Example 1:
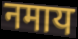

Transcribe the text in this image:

नमाय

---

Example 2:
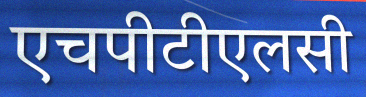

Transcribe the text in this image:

एचपीटीएलसी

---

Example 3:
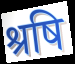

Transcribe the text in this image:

श्रषि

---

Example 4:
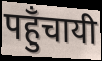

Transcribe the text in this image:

पहुँचायी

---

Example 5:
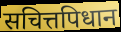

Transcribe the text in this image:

सचित्तपिधान